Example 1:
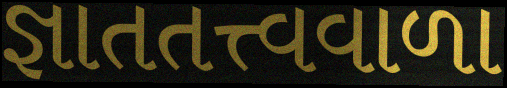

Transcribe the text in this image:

જ્ઞાતતત્ત્વવાળા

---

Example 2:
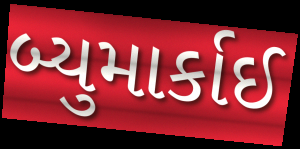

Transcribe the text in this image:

બ્યુમાર્કાઈ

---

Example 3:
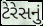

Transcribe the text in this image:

ટેરેસનું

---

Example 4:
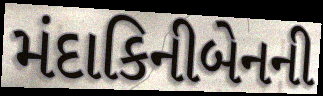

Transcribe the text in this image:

મંદાકિનીબેનની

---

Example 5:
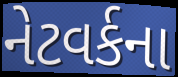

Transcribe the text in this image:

નેટવર્કના